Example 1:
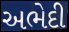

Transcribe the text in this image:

અભેદી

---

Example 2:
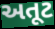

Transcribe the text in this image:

અતૂટ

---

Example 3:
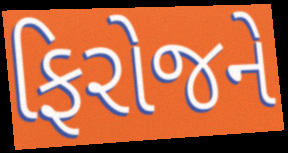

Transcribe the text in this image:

ફિરોજને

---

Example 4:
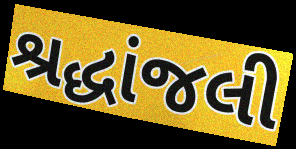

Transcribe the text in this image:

શ્રદ્ધાંજલી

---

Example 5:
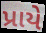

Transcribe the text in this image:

પ્રાયે